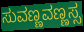
ಸುವಣ್ಣವಣ್ಣಸ್ಸ